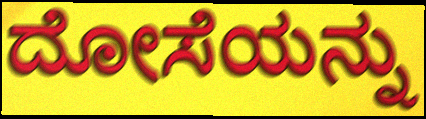
ದೋಸೆಯನ್ನು